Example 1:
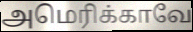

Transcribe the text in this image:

அமெரிக்காவே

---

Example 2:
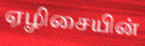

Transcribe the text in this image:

ஏழிசையின்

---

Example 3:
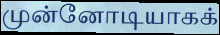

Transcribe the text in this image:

முன்னோடியாகக்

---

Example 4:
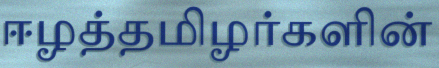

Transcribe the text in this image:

ஈழத்தமிழர்களின்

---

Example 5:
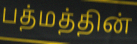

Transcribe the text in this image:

பத்மத்தின்